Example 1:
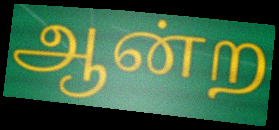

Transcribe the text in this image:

ஆன்ற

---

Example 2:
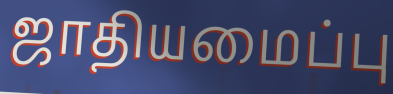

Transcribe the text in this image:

ஜாதியமைப்பு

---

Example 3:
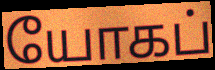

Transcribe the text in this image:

யோகப்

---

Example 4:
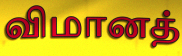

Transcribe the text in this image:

விமானத்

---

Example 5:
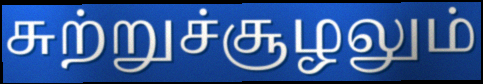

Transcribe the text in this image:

சுற்றுச்சூழலும்